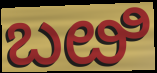
ಬೞಿ